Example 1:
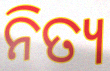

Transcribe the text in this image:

ନିତ୍ୟ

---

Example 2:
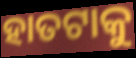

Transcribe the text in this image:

ହାତଟାକୁ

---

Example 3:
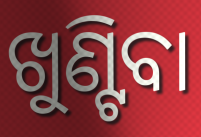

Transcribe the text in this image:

ଖୁଣ୍ଟିବା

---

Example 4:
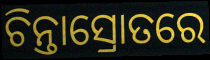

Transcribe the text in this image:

ଚିନ୍ତାସ୍ରୋତରେ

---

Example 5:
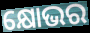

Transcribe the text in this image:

କ୍ଷୋଭର